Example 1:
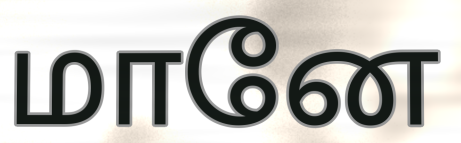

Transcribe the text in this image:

மானே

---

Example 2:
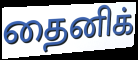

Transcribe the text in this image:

தைனிக்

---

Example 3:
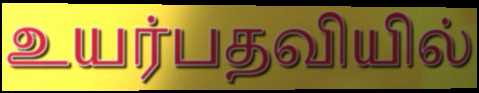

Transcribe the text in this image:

உயர்பதவியில்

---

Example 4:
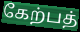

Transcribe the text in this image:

கேற்பத்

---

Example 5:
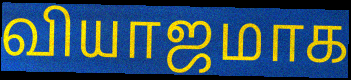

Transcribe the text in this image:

வியாஜமாக